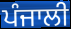
ਪੰਜਾਲੀ